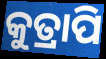
କୁତ୍ରାପି